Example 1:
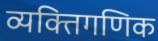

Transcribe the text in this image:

व्यक्तिगणिक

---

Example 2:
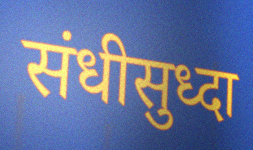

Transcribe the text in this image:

संधीसुध्दा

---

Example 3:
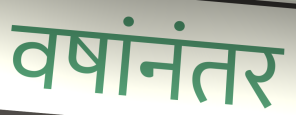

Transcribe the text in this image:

वषांनंतर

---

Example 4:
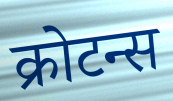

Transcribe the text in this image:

क्रोटन्स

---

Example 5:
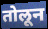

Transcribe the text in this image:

तोलून